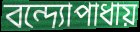
বন্দ্যোপাধায়